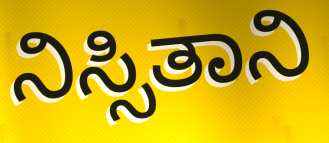
ನಿಸ್ಸಿತಾನಿ